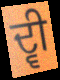
ਦ੍ਵੀ